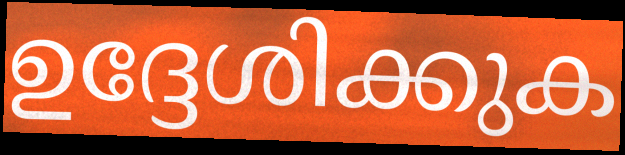
ഉദ്ദേശിക്കുക